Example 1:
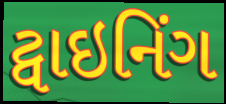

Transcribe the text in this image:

ટ્વાઇનિંગ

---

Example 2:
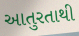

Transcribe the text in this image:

આતુરતાથી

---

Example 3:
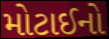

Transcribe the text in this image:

મોટાઈનો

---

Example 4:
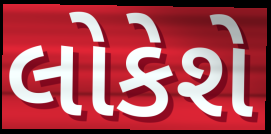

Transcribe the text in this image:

લોકેશે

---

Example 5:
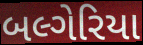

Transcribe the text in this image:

બલ્ગેરિયા